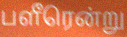
பளீரென்று